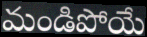
మండిపోయే